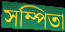
সম্পিতা